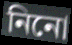
নিনো